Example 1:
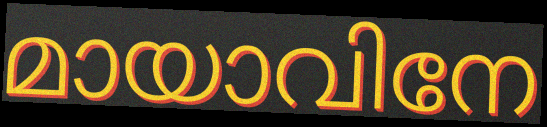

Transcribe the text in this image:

മായാവിനേ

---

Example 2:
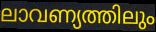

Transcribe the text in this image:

ലാവണ്യത്തിലും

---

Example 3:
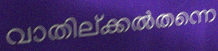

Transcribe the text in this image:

വാതില്ക്കൽതന്നെ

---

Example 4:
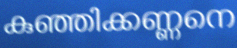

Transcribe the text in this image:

കുഞ്ഞിക്കണ്ണനെ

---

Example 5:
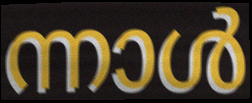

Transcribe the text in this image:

ന്നാൾ